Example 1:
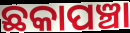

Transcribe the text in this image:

ଛକାପଞ୍ଚା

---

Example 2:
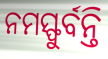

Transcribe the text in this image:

ନମସ୍ଫୁର୍ବନ୍ତି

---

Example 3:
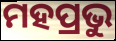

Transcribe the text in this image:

ମହପ୍ରଭୁ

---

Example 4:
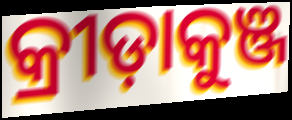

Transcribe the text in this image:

କ୍ରୀଡ଼ାକୁଞ୍ଜ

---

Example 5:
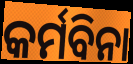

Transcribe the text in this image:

କର୍ମବିନା